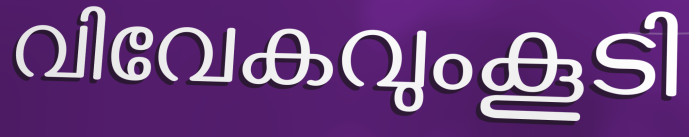
വിവേകവുംകൂടി